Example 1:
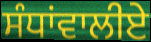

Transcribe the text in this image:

ਸੰਧਾਂਵਾਲੀਏ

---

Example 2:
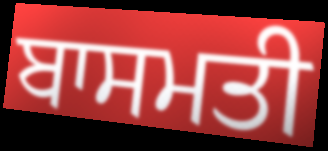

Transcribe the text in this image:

ਬਾਸਮਤੀ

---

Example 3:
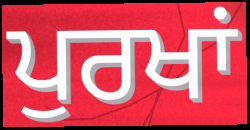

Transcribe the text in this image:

ਪੁਰਖਾਂ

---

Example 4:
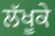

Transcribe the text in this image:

ਲੱਖੂਕੇ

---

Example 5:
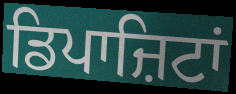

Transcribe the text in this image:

ਡਿਪਾਜ਼ਿਟਾਂ